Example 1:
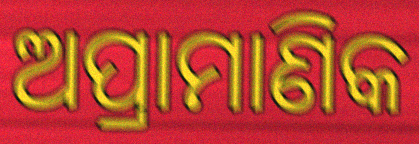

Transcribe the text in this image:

ଅପ୍ରାମାଣିକ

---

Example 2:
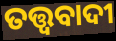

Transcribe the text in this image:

ତତ୍ତ୍ଵବାଦୀ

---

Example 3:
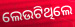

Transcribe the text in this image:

ଲେଉଟିଥିଲେ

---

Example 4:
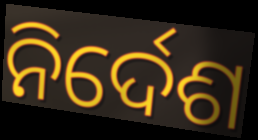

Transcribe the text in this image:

ନିର୍ଦେଶ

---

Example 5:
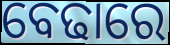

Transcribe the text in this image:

ବେଢାରେ